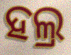
ହଲ୍ର